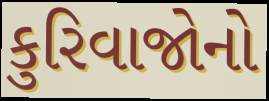
કુરિવાજોનો